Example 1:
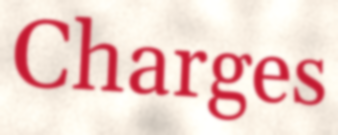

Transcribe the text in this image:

Charges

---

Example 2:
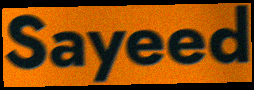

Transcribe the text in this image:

Sayeed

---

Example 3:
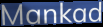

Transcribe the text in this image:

Mankad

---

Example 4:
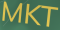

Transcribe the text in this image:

MKT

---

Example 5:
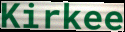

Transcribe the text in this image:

Kirkee